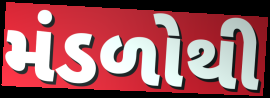
મંડળોથી